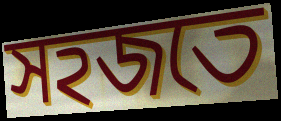
সহজতে